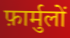
फ़ार्मुलों